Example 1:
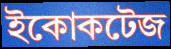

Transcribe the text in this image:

ইকোকটেজ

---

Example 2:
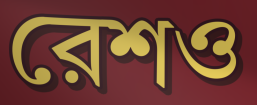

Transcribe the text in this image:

রেশও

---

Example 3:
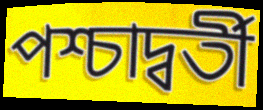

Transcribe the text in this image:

পশ্চাদ্বর্তী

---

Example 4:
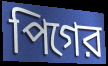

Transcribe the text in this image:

পিগের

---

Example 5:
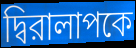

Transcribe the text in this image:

দ্বিরালাপকে